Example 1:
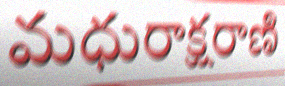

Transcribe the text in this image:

మధురాక్షరాణి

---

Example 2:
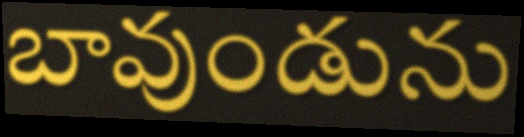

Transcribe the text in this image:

బావుండును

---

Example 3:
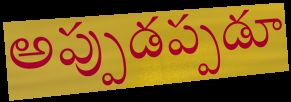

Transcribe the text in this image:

అప్పుడప్పడూ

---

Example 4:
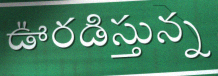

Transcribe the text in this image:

ఊరడిస్తున్న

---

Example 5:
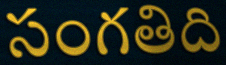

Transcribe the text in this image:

సంగతిది